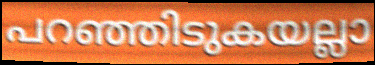
പറഞ്ഞിടുകയല്ലാ